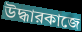
উদ্ধারকাজে